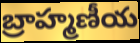
బ్రాహ్మణీయ